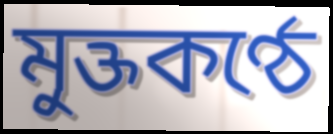
মুক্তকণ্ঠে